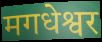
मगधेश्वर